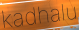
kadhalu